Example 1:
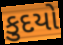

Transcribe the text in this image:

કુદયો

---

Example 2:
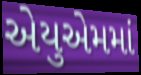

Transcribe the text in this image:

એયુએમમાં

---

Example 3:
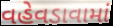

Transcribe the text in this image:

વહેવડાવામાં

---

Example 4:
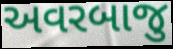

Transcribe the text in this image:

અવરબાજુ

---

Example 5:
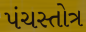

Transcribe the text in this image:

પંચસ્તોત્ર